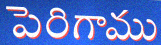
పెరిగాము